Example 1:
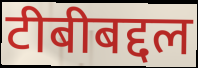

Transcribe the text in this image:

टीबीबद्दल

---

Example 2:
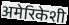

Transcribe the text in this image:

अमेरिकेशी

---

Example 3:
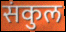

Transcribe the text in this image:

संकुल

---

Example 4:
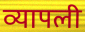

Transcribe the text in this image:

व्यापली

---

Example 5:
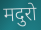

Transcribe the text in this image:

मदुरो